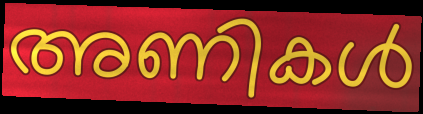
അണികൾ